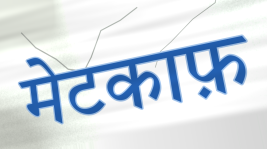
मेटकाफ़